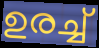
ഉരച്ച്